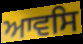
ਆਵਸਿ